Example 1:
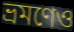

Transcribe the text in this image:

ভ্রমণেও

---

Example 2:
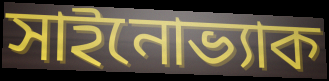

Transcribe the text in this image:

সাইনোভ্যাক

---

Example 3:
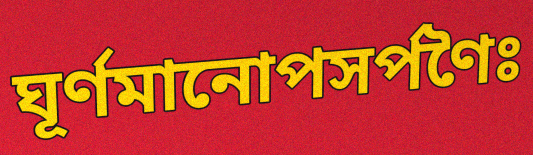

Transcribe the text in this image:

ঘূর্ণমানোপসর্পণৈঃ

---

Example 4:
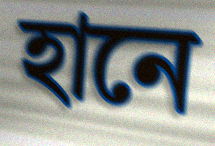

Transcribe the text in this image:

হানে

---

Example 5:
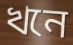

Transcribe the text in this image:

খনে